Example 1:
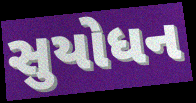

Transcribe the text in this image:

સુયોધન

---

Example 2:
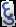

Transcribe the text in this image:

દુ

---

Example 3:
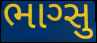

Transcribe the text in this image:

ભાગ્સુ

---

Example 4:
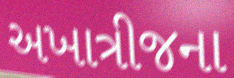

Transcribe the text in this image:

અખાત્રીજના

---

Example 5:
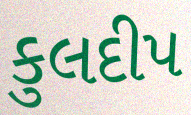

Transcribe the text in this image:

કુલદીપ